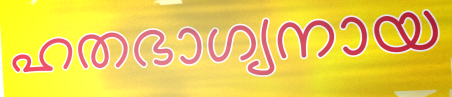
ഹതഭാഗ്യനായ